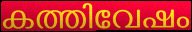
കത്തിവേഷം